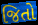
જિતો